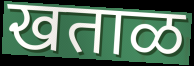
खताळ